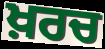
ਖ਼ਰਚ